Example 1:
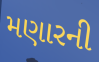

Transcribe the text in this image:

મણારની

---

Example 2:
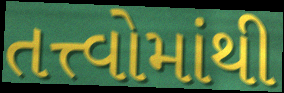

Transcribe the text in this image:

તત્ત્વોમાંથી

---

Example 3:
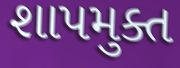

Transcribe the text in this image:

શાપમુક્ત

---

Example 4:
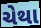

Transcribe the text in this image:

ચેથા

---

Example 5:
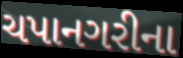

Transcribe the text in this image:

ચપાનગરીના